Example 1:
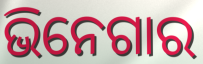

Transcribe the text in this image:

ଭିନେଗାର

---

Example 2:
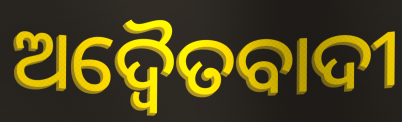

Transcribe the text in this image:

ଅଦ୍ୱୈତବାଦୀ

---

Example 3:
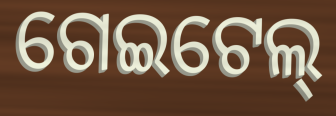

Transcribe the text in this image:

ଗେଇଟେଲ୍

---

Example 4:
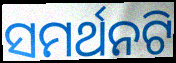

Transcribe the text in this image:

ସମର୍ଥନଟି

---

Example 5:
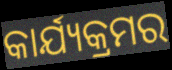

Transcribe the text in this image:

କାର୍ଯ୍ୟକ୍ରମର